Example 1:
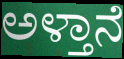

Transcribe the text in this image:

ಅಳ್ತಾನೆ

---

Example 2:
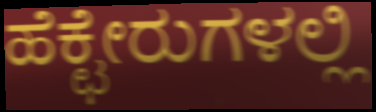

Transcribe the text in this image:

ಹೆಕ್ಟೇರುಗಳಲ್ಲಿ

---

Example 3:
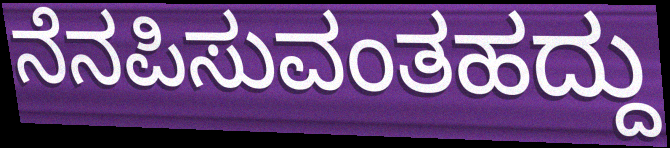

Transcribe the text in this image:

ನೆನಪಿಸುವಂತಹದ್ದು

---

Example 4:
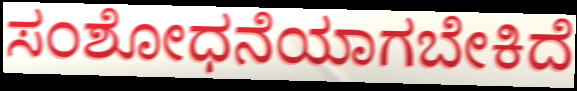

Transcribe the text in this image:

ಸಂಶೋಧನೆಯಾಗಬೇಕಿದೆ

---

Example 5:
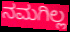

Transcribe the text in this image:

ನಮಗಿಲ್ಲ